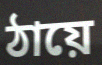
ঠায়ে